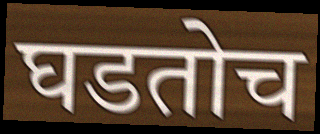
घडतोच